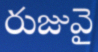
రుజువై